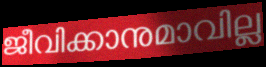
ജീവിക്കാനുമാവില്ല